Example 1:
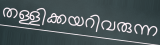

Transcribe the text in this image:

തള്ളിക്കയറിവരുന്ന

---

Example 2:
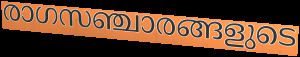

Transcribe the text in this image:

രാഗസഞ്ചാരങ്ങളുടെ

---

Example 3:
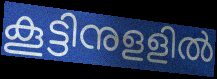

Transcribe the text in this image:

കൂട്ടിനുളളിൽ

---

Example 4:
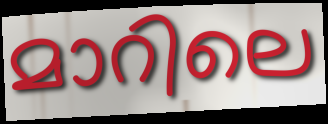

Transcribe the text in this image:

മാറിലെ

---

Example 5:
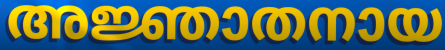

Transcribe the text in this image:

അജ്ഞാതനായ